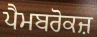
ਪੈਮਬਰੋਕਜ਼